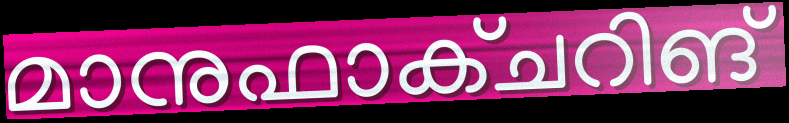
മാനുഫാക്ചറിങ്